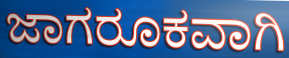
ಜಾಗರೂಕವಾಗಿ